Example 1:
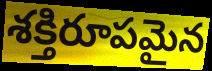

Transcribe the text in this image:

శక్తిరూపమైన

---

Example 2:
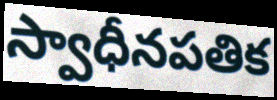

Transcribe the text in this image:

స్వాధీనపతిక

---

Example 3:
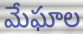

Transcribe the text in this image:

మేఘాల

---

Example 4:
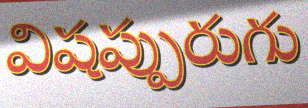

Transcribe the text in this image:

విషప్పురుగు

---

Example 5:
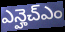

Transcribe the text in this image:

ఎన్హెచ్ఎం